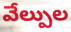
వేల్పుల